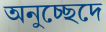
অনুচ্ছেদে